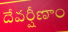
దేవర్షీణాం